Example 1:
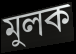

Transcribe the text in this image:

মুলক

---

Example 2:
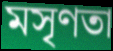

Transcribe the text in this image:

মসৃণতা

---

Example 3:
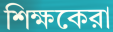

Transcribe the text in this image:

শিক্ষকেরা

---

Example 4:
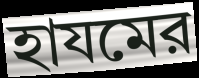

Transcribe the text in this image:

হাযমের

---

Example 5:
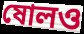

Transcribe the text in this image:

ষোলও